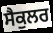
ਸੈਕੁਲਰ